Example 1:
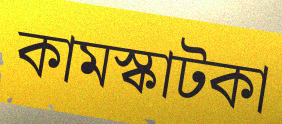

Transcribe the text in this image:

কামস্কাটকা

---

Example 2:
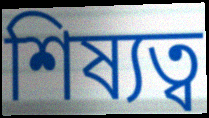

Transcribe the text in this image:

শিষ্যত্ব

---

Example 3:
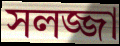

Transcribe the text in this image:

সলজ্জা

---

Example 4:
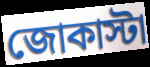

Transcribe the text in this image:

জোকাস্টা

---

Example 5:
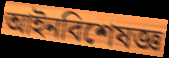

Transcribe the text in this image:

আইনবিশেষজ্ঞ